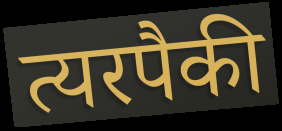
त्यरपैकी